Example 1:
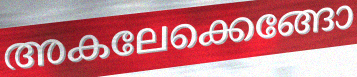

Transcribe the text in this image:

അകലേക്കെങ്ങോ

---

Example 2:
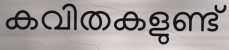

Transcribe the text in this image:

കവിതകളുണ്ട്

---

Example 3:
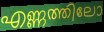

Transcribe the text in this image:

എണ്ണത്തിലോ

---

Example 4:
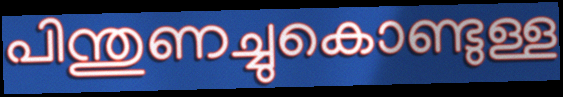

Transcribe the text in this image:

പിന്തുണച്ചുകൊണ്ടുള്ള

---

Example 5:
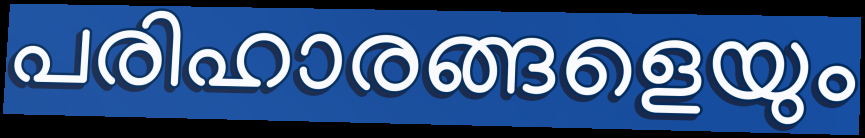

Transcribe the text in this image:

പരിഹാരങ്ങളെയും